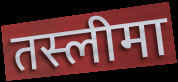
तस्लीमा